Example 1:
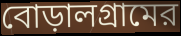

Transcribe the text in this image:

বোড়ালগ্রামের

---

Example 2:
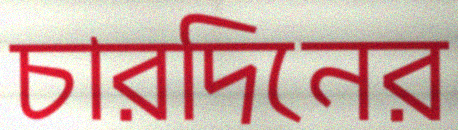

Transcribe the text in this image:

চারদিনের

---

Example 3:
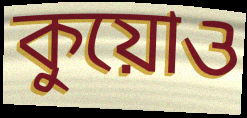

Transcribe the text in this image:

কুয়োও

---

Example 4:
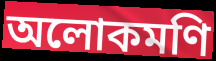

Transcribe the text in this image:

অলোকমণি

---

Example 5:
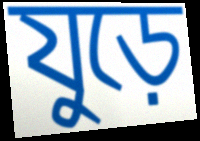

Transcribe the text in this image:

যুড়ে